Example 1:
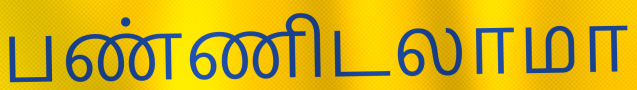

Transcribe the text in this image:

பண்ணிடலாமா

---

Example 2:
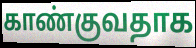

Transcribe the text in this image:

காண்குவதாக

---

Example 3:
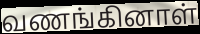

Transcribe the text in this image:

வணங்கினாள்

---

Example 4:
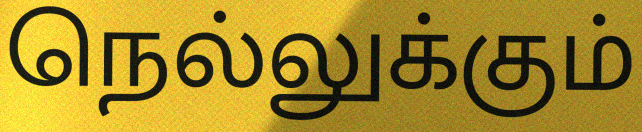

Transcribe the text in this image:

நெல்லுக்கும்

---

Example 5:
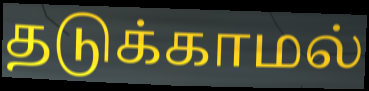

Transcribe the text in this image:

தடுக்காமல்